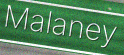
Malaney